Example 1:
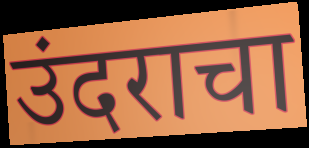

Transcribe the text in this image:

उंदराचा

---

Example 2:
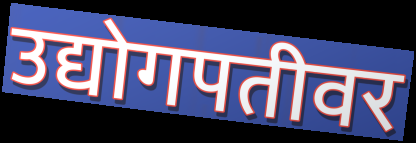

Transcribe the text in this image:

उद्योगपतीवर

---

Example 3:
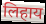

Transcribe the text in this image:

लिहाय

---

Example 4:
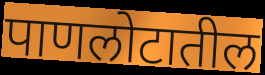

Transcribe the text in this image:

पाणलोटातील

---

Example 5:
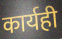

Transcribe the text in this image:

कार्यही